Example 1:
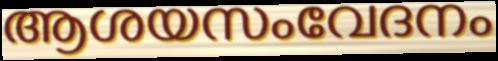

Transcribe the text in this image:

ആശയസംവേദനം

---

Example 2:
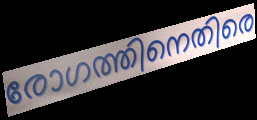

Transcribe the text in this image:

രോഗത്തിനെതിരെ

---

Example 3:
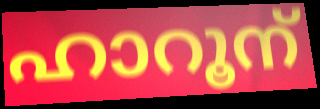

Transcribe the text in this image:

ഹാറൂന്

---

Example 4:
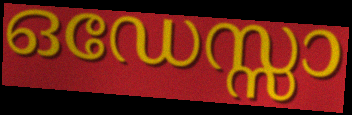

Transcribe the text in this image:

ഒഡേസ്സാ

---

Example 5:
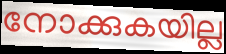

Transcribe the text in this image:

നോക്കുകയില്ല